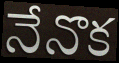
నేనొక